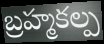
బ్రహ్మకల్ప